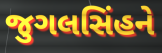
જુગલસિંહને